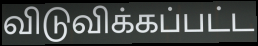
விடுவிக்கப்பட்ட